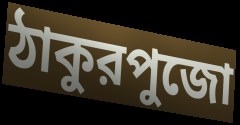
ঠাকুরপুজো